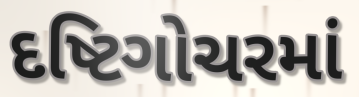
દષ્ટિગોચરમાં